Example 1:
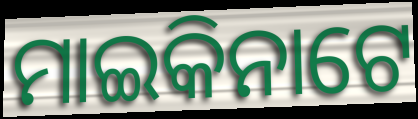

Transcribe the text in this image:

ମାଇକିନାଟେ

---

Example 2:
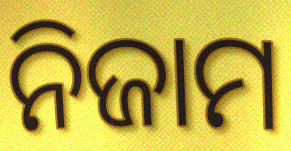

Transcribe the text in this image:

ନିଜାମ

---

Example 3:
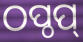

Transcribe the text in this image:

ଠପ୍ଠପ୍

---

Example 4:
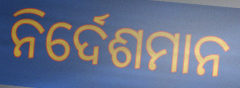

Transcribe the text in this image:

ନିର୍ଦେଶମାନ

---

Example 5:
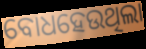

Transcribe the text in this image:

ବୋଧହେଉଥିଲା